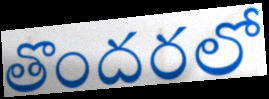
తొందరలో